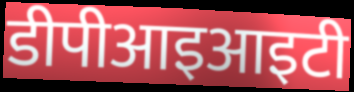
डीपीआइआइटी